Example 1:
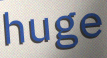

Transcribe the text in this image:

huge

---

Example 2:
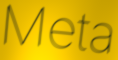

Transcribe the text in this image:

Meta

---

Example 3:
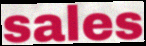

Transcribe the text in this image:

sales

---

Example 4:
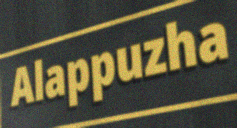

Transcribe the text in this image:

Alappuzha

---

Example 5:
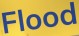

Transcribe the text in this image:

Flood